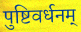
पुष्टिवर्धनम्